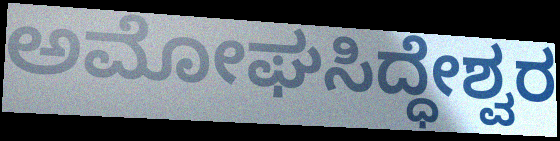
ಅಮೋಘಸಿದ್ಧೇಶ್ವರ